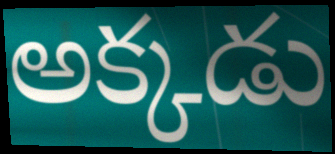
అక్కడు